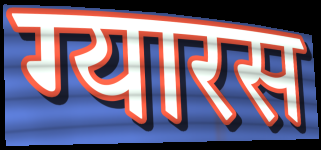
ग्यारस